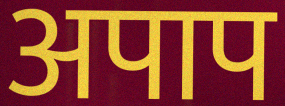
अपाप